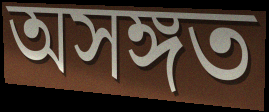
অসঙ্গত